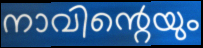
നാവിന്റെയും